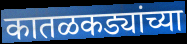
कातळकड्यांच्या